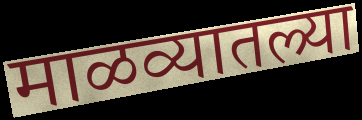
माळव्यातल्या